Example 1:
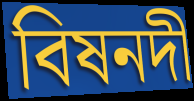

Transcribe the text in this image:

বিষনদী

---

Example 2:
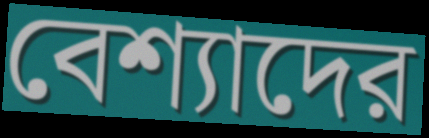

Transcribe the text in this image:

বেশ্যাদের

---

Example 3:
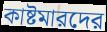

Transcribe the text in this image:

কাষ্টমারদের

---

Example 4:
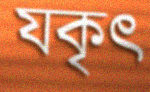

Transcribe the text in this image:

যকৃৎ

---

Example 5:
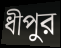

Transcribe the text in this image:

ধীপুর